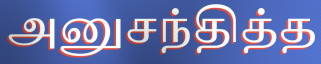
அனுசந்தித்த